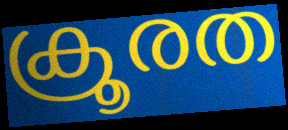
ക്രൂരത